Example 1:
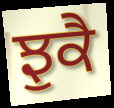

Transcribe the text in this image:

ਝੁਕੈ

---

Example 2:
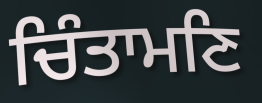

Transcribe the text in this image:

ਚਿੰਤਾਮਣਿ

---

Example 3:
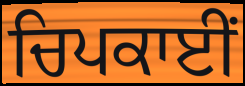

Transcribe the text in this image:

ਚਿਪਕਾਈਂ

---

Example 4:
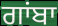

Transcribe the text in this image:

ਗਾਂਬਾ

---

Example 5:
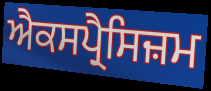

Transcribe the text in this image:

ਐਕਸਪ੍ਰੈਸਿਜ਼ਮ